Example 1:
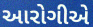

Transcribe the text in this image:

આરોગીએ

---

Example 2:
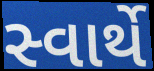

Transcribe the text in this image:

સ્વાર્થે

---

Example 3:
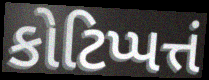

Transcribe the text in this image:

કોટિપ્પત્તં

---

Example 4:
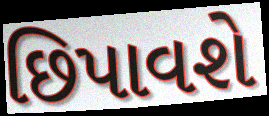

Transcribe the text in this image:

છિપાવશે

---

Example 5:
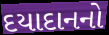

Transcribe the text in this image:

દયાદાનનો